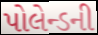
પોલેન્ડની